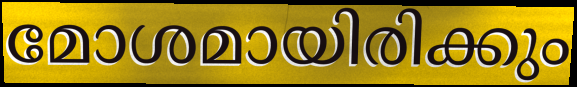
മോശമായിരിക്കും